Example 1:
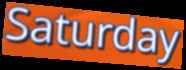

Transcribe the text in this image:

Saturday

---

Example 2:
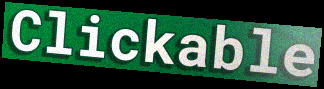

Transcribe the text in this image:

Clickable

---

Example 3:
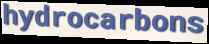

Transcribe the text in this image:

hydrocarbons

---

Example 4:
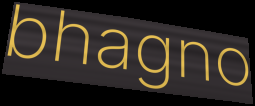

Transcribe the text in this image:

bhagno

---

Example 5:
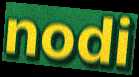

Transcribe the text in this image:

nodi